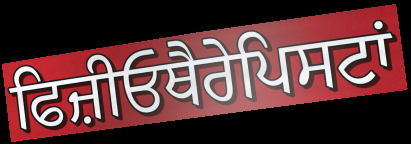
ਫਿਜ਼ੀਓਥੈਰੇਪਿਸਟਾਂ